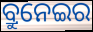
ବ୍ରୁନେଇର